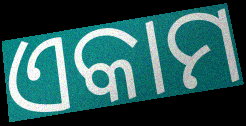
ଏକାମ